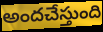
అందచేస్తుంది